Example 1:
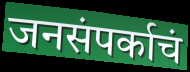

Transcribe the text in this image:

जनसंपर्काचं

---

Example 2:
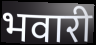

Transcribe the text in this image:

भवारी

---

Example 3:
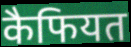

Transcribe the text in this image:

कैफियत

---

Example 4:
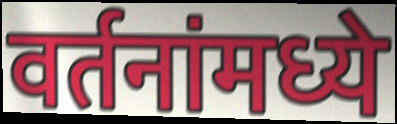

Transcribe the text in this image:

वर्तनांमध्ये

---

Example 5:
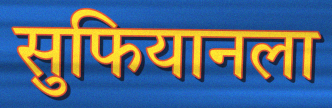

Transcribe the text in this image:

सुफियानला